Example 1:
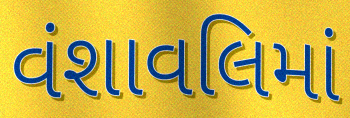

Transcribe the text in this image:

વંશાવલિમાં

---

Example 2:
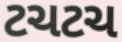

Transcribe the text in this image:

ટચટચ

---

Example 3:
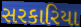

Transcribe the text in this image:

સરકારિયા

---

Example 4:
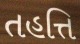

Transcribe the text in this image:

તહત્તિ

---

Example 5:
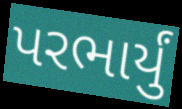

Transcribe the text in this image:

પરભાર્યું